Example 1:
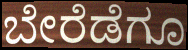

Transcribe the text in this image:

ಬೇರೆಡೆಗೂ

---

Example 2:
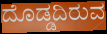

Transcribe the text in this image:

ದೊಡ್ಡದಿರುವ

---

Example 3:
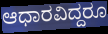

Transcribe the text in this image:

ಆಧಾರವಿದ್ದರೂ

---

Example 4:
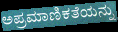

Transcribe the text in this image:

ಅಪ್ರಮಾಣಿಕತೆಯನ್ನು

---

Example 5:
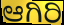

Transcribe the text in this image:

ಆಗಿರಿ